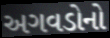
અગવડોનો